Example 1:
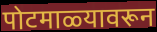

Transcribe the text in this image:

पोटमाळ्यावरून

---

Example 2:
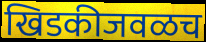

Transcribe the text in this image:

खिडकीजवळच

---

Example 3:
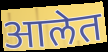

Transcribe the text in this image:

आलेत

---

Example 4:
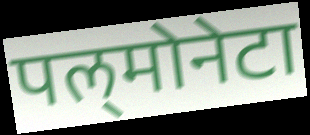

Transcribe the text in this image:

पल्मोनेटा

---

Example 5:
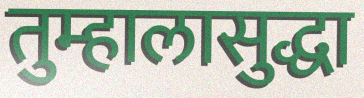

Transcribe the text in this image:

तुम्हालासुद्धा